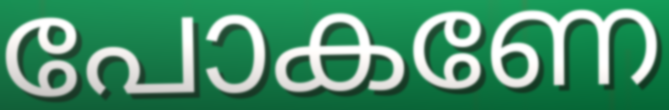
പോകണേ